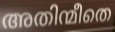
അതിന്മീതെ